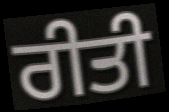
ਰੀਤੀ